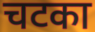
चटका